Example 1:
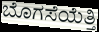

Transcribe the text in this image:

ಬೊಗಸೆಯೆತ್ತಿ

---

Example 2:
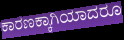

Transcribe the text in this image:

ಕಾರಣಕ್ಕಾಗಿಯಾದರೂ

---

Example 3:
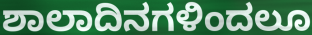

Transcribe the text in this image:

ಶಾಲಾದಿನಗಳಿಂದಲೂ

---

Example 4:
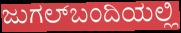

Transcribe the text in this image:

ಜುಗಲ್‌ಬಂದಿಯಲ್ಲಿ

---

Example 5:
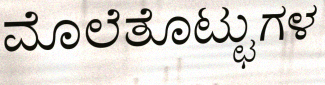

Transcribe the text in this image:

ಮೊಲೆತೊಟ್ಟುಗಳ